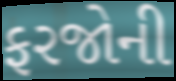
ફરજોની